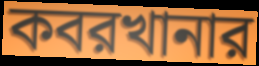
কবরখানার